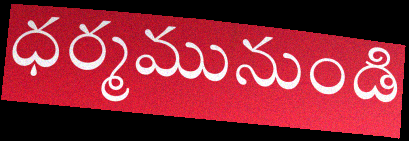
ధర్మమునుండి